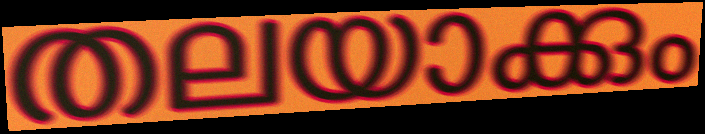
തലയാക്കും